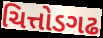
ચિત્તોડગઢ